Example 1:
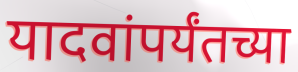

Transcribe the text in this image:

यादवांपर्यंतच्या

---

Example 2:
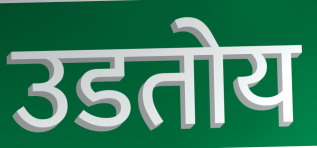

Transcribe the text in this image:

उडतोय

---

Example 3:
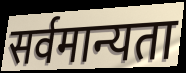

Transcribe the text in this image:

सर्वमान्यता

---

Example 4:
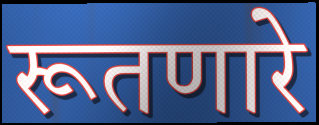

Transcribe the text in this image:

रूतणारे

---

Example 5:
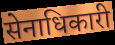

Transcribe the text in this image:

सेनाधिकारी